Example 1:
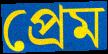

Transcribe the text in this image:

প্রেম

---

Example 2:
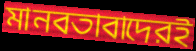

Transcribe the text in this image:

মানবতাবাদেরই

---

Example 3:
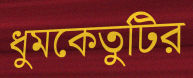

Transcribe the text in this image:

ধুমকেতুটির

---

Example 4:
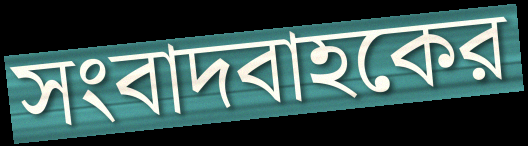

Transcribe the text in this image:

সংবাদবাহকের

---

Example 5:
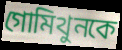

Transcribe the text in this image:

গোমিথুনকে